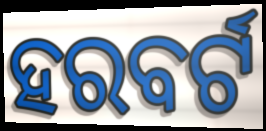
ହରବର୍ଟ